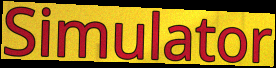
Simulator